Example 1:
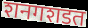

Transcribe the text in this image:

शनगशडत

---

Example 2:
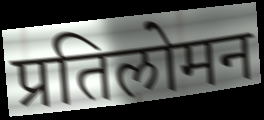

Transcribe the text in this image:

प्रतिलोमन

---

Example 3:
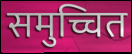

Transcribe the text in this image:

समुच्चित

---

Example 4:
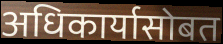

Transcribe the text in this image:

अधिकार्यासोबत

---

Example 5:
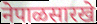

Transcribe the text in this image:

नेपाळसारखे